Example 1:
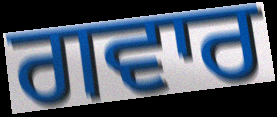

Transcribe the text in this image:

ਗਵਾਰ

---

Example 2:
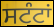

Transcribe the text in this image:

ਸਟੰਟਾਂ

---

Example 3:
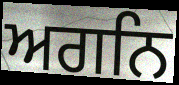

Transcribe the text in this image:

ਅਗਨਿ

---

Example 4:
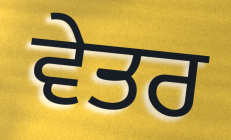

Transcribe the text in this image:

ਵੇਤਰ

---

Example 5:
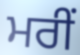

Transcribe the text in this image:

ਮਰੀਂ